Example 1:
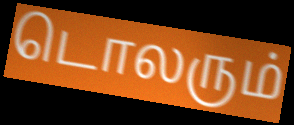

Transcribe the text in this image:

டொலரும்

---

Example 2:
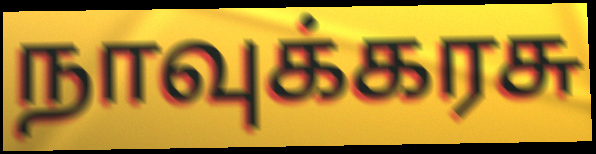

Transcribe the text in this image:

நாவுக்கரசு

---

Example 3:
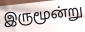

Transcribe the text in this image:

இருமூன்று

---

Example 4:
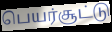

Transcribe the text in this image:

பெயர்சூட்டு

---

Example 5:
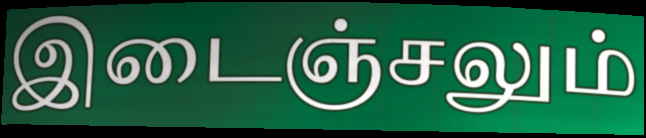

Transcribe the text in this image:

இடைஞ்சலும்